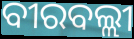
ବୀରବଲ୍ଲୀ